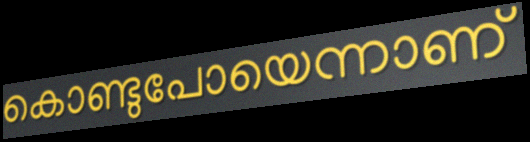
കൊണ്ടുപോയെന്നാണ്